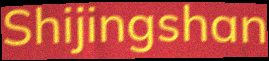
Shijingshan